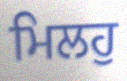
ਮਿਲਹੁ